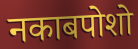
नकाबपोशो